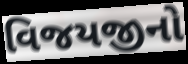
વિજયજીનો